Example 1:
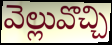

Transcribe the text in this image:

వెల్లువొచ్చి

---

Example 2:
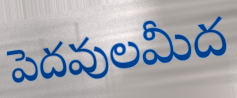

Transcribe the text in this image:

పెదవులమీద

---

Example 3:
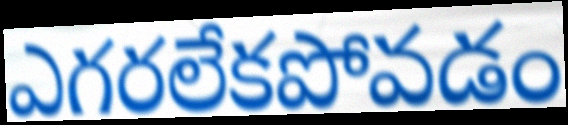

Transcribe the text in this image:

ఎగరలేకపోవడం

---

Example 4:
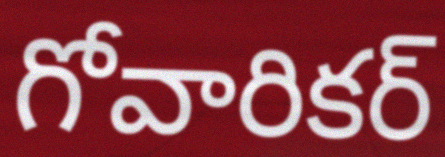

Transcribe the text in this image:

గోవారికర్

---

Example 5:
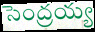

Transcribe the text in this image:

సెంద్రయ్య